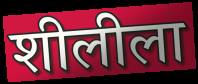
शीलीला